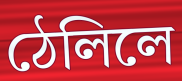
ঠেলিলে